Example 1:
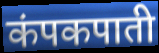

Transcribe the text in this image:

कंपकपाती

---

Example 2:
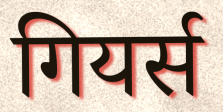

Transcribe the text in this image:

गियर्स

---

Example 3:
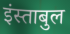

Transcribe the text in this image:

इंस्ताबुल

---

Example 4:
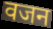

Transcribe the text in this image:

वजन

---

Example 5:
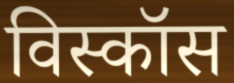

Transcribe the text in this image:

विस्कॉस